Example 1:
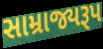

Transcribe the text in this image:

સામ્રાજ્યરૂપ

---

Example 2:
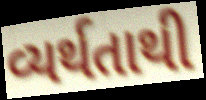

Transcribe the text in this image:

વ્યર્થતાથી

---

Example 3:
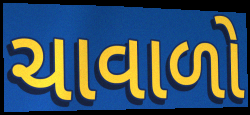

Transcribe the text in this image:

ચાવાળો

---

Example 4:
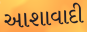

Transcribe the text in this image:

આશાવાદી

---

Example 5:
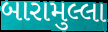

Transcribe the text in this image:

બારામુલ્લા